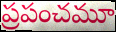
ప్రపంచమూ